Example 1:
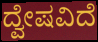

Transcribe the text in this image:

ದ್ವೇಷವಿದೆ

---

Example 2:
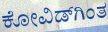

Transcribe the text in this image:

ಕೋವಿಡ್‌ಗಿಂತ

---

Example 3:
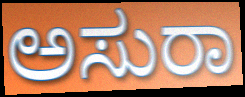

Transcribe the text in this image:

ಅಸುರಾ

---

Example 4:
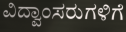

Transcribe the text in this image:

ವಿದ್ವಾಂಸರುಗಳಿಗೆ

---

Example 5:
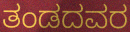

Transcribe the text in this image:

ತಂಡದವರ